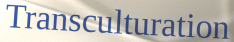
Transculturation